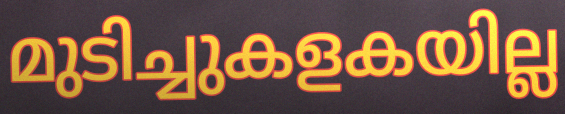
മുടിച്ചുകളകയില്ല